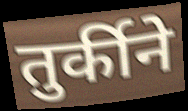
तुर्कीने